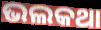
ଭଲକଥା